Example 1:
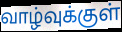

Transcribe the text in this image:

வாழ்வுக்குள்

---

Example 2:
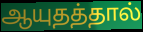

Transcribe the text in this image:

ஆயுதத்தால்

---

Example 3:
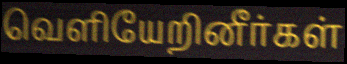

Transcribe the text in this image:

வெளியேறினீர்கள்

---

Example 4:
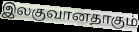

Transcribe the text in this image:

இலகுவானதாகும்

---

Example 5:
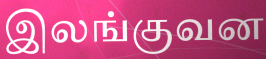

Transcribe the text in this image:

இலங்குவன